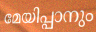
മേയിപ്പാനും